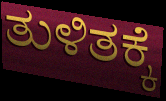
ತುಳಿತಕ್ಕೆ